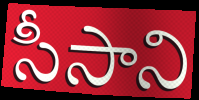
సీసాని